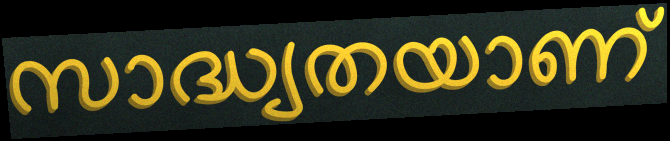
സാദ്ധ്യതയാണ്